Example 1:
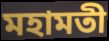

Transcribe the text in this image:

মহামতী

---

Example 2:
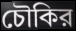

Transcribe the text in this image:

চৌকির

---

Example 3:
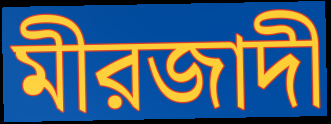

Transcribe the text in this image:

মীরজাদী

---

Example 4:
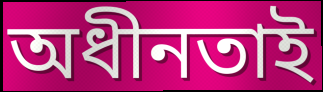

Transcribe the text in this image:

অধীনতাই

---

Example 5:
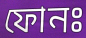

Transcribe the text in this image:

ফোনঃ